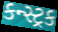
કન્સ્ટ્રક